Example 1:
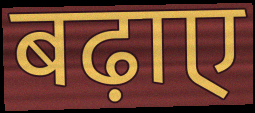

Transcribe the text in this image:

बढ़ाए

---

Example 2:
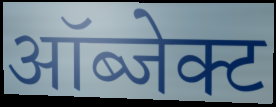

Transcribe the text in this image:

ऑब्जेक्ट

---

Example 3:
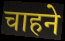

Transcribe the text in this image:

चाहने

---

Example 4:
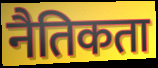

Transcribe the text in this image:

नैतिकता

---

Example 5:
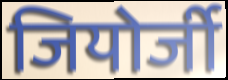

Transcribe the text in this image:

जियोर्जी